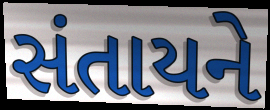
સંતાયને